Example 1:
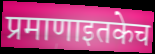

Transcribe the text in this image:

प्रमाणाइतकेच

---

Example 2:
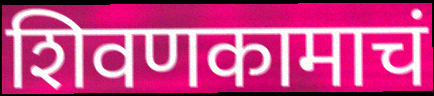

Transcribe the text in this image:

शिवणकामाचं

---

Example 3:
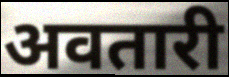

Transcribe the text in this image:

अवतारी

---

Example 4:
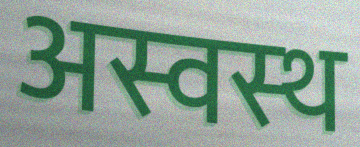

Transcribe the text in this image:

अस्वस्थ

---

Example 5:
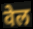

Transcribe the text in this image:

वेल